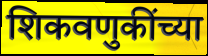
शिकवणुकींच्या